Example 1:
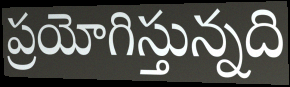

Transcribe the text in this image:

ప్రయోగిస్తున్నది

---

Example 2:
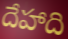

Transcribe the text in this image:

దేహాది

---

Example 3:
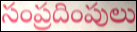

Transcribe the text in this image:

సంప్రదింపులు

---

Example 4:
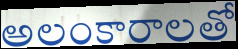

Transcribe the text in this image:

అలంకారాలతో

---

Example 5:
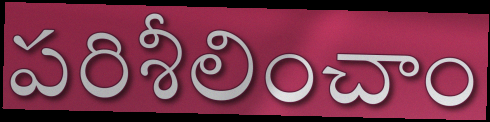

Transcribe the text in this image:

పరిశీలించాం